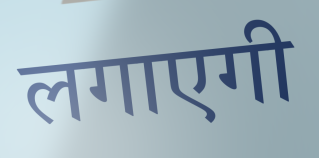
लगाएगी